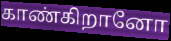
காண்கிறானோ